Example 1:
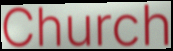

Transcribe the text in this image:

Church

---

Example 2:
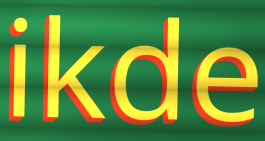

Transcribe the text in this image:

ikde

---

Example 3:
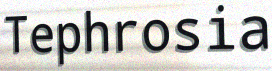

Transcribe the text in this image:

Tephrosia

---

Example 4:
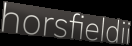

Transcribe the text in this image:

horsfieldii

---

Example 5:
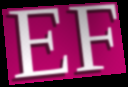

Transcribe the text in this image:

EF